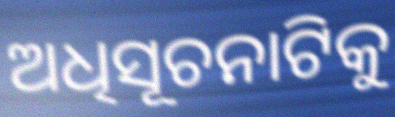
ଅଧିସୂଚନାଟିକୁ